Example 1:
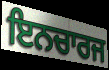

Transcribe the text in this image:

ਇਨਚਾਰਜ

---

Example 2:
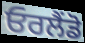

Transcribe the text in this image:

ਓਰਲੈਂਡੋ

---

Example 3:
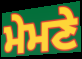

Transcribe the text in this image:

ਮੇਮਣੇ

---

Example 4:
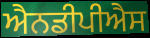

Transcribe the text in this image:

ਐਨਡੀਪੀਐਸ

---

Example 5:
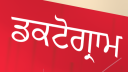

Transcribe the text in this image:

ਡਕਟੋਗ੍ਰਾਮ